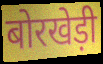
बोरखेड़ी